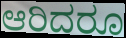
ಆರಿದರೂ